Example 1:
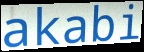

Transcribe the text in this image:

akabi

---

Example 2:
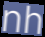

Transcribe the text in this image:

nh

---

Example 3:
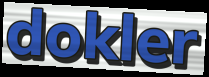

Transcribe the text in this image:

dokler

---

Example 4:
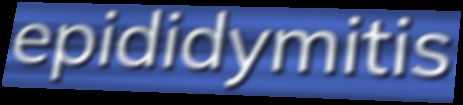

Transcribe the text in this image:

epididymitis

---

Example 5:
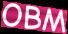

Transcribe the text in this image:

OBM